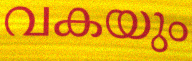
വകയും